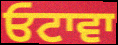
ਓਟਾਵਾ